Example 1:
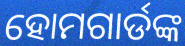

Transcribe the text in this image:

ହୋମଗାର୍ଡଙ୍କ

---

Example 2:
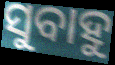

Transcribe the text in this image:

ସୁବାହୁ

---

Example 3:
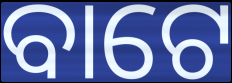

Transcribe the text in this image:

ବାଟେ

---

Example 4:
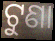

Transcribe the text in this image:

ଟୁଣା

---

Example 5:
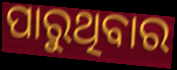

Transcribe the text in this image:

ପାରୁଥିବାର